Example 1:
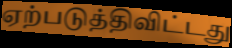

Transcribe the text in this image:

ஏற்படுத்திவிட்டது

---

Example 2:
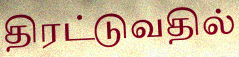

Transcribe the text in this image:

திரட்டுவதில்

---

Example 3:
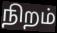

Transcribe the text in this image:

நிறம்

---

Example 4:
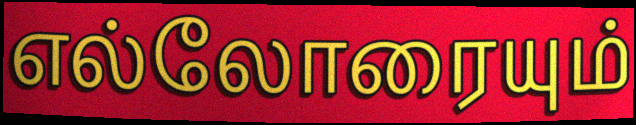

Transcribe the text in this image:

எல்லோரையும்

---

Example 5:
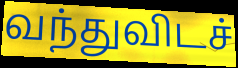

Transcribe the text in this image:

வந்துவிடச்